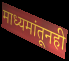
माध्यमांतूनही